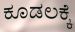
ಕೂಡಲಕ್ಕೆ